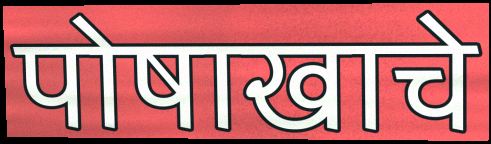
पोषाखाचे